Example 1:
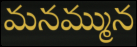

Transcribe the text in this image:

మనమ్మున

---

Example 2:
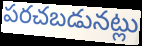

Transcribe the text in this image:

పరచబడునట్లు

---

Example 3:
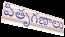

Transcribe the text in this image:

పితృగణాలు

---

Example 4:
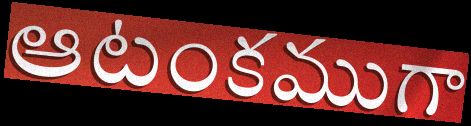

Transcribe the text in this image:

ఆటంకముగా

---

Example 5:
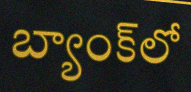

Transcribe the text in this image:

బ్యాంక్‌లో